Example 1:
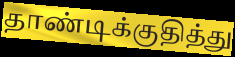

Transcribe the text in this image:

தாண்டிக்குதித்து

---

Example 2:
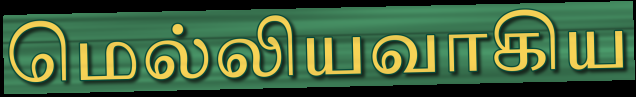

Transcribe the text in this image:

மெல்லியவாகிய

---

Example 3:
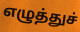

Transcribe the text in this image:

எழுத்துச்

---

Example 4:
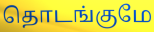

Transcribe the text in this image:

தொடங்குமே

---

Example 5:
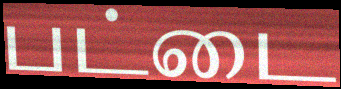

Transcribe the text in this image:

பட்டை